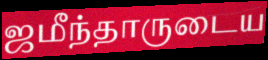
ஜமீந்தாருடைய